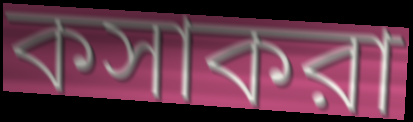
কসাকরা